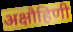
अक्षौहिणी